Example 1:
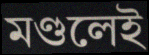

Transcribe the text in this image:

মণ্ডলেই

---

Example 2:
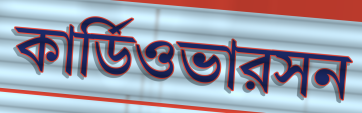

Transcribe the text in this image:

কার্ডিওভারসন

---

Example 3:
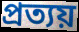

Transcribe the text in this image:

প্রত্যয়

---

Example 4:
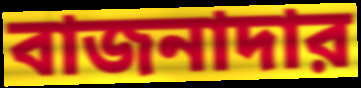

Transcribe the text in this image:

বাজনাদার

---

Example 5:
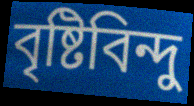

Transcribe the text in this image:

বৃষ্টিবিন্দু